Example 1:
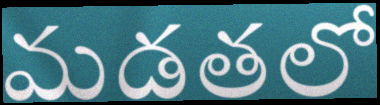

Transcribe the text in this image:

మడతలో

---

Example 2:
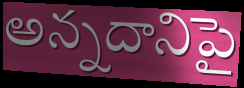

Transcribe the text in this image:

అన్నదానిపై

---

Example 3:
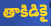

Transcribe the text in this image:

తాకిడికై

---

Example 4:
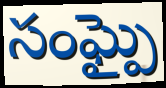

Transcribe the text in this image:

సంఘ్పై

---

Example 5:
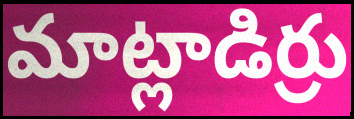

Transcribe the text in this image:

మాట్లాడిర్రు